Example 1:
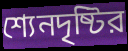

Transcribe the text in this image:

শ্যেনদৃষ্টির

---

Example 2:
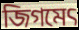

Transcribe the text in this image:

জিগমেৎ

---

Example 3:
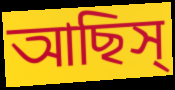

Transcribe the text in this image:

আছিস্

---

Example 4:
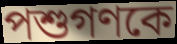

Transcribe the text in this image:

পশুগণকে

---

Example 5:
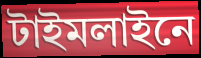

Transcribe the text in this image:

টাইমলাইনে